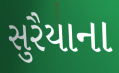
સુરૈયાના